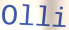
Olli